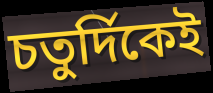
চতুর্দিকেই